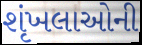
શૃંખલાઓની